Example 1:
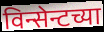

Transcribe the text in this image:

विन्सेन्टच्या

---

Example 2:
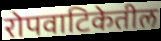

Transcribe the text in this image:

रोपवाटिकेतील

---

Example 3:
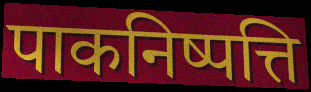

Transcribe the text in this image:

पाकनिष्पत्ति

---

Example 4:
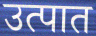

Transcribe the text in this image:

उत्पात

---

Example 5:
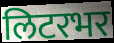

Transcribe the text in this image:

लिटरभर